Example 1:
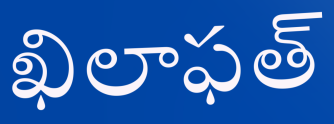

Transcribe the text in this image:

ఖిలాఫత్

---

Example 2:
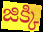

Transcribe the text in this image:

జిక్కి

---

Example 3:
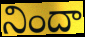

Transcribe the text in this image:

నిందా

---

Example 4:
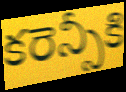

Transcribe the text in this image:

కరెన్సీకి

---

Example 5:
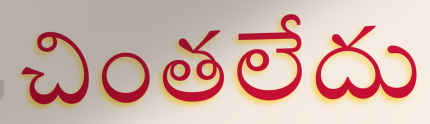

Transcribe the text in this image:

చింతలేదు